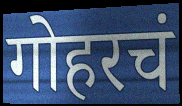
गोहरचं